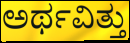
ಅರ್ಥವಿತ್ತು